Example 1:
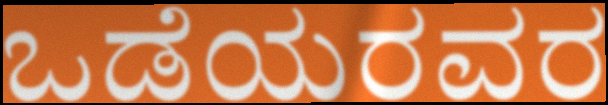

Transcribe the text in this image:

ಒಡೆಯರವರ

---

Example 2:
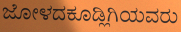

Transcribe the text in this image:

ಜೋಳದಕೂಡ್ಲಿಗಿಯವರು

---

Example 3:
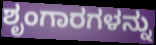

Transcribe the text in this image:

ಶೃಂಗಾರಗಳನ್ನು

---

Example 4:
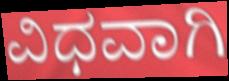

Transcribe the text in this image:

ವಿಧವಾಗಿ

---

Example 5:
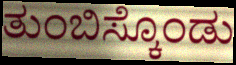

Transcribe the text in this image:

ತುಂಬಿಸ್ಕೊಂಡು